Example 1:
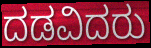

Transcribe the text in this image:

ದಡವಿದರು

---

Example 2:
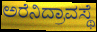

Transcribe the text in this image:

ಅರೆನಿದ್ರಾವಸ್ಥೆ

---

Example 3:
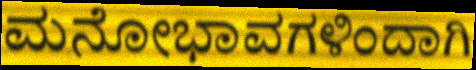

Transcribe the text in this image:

ಮನೋಭಾವಗಳಿಂದಾಗಿ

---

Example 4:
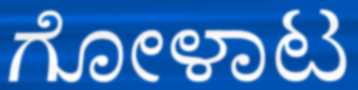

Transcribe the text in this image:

ಗೋಳಾಟ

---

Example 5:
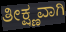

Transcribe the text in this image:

ತೀಕ್ಷ್ಣವಾಗಿ